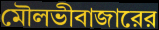
মৌলভীবাজারের